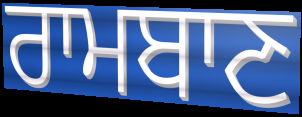
ਰਾਮਬਾਣ